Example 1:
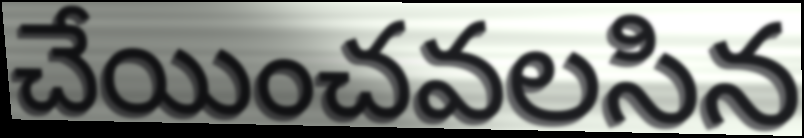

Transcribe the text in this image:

చేయించవలసిన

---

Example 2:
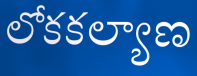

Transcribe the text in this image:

లోకకల్యాణ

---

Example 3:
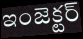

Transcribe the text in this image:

ఇంజెక్టర్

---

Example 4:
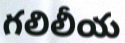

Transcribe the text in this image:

గలిలీయ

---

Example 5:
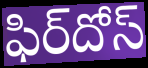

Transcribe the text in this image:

ఫిర్‌దోస్